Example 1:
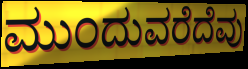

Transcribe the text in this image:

ಮುಂದುವರೆದೆವು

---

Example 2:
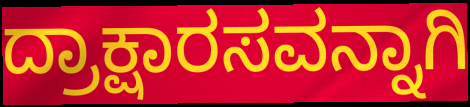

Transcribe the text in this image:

ದ್ರಾಕ್ಷಾರಸವನ್ನಾಗಿ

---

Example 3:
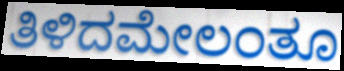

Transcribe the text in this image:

ತಿಳಿದಮೇಲಂತೂ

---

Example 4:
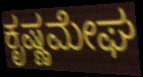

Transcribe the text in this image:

ಕೃಷ್ಣಮೇಘ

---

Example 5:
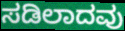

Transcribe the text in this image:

ಸಡಿಲಾದವು